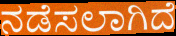
ನಡೆಸಲಾಗಿದೆ